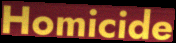
Homicide